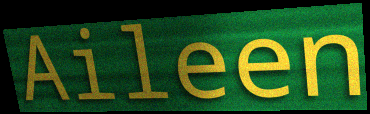
Aileen